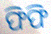
ଫିଫି